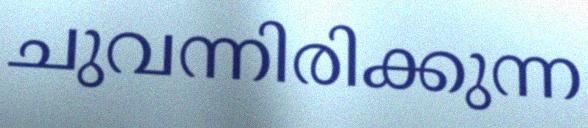
ചുവന്നിരിക്കുന്ന